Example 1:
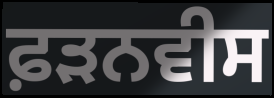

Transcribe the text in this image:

ਫ਼ੜਨਵੀਸ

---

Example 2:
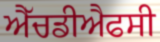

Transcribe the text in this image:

ਐੱਚਡੀਐਫਸੀ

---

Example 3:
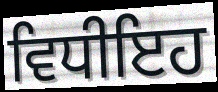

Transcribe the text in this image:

ਵਿਧੀਇਹ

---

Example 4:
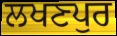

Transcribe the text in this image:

ਲਖਣਪੁਰ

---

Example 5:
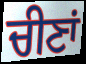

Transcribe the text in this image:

ਚੀਣਾਂ